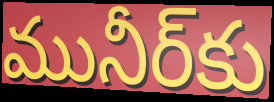
మునీర్‌కు